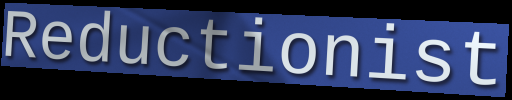
Reductionist